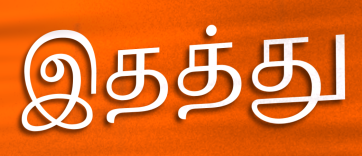
இதத்து